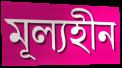
মূল্যহীন